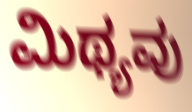
ಮಿಥ್ಯವು